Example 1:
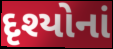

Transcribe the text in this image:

દૃશ્યોનાં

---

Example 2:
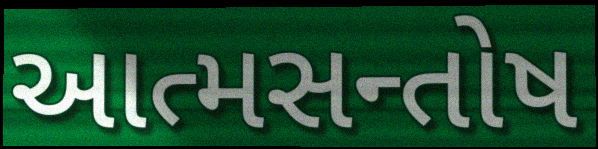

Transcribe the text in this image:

આત્મસન્તોષ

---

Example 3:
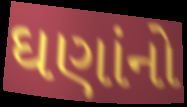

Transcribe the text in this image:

ઘણાંનો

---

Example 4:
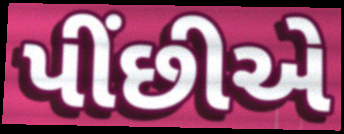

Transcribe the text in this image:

પીંછીએ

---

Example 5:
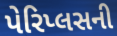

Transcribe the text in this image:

પેરિપ્લસની